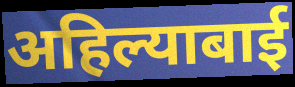
अहिल्याबाई